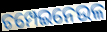
ଚମ୍ପେଇନେଉଳ